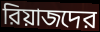
রিয়াজদের